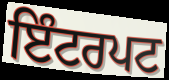
ਇੰਟਰਪਟ